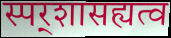
स्पर्शासह्यत्व